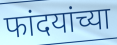
फांदयांच्या